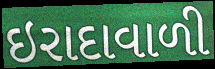
ઇરાદાવાળી